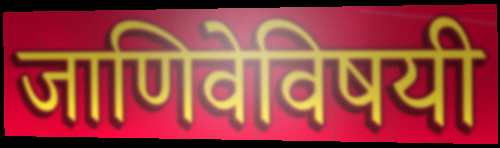
जाणिवेविषयी